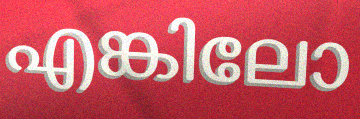
എങ്കിലോ